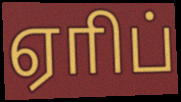
ஏரிப்